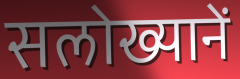
सलोख्यानें